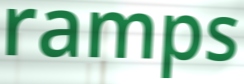
ramps